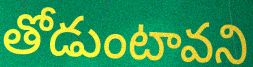
తోడుంటావని